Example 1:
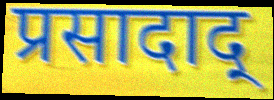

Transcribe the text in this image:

प्रसादाद्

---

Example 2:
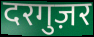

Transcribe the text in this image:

दरगुज़र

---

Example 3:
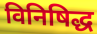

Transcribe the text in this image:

विनिषिद्ध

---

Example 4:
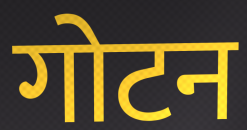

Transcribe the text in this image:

गोटन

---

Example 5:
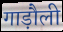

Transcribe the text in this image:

गाड़ौली